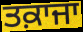
ਤਕ਼ਾਜਾ